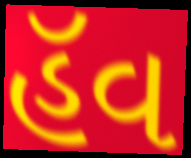
હૅવ